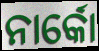
ନାର୍କୋ